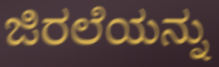
ಜಿರಲೆಯನ್ನು